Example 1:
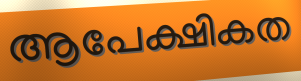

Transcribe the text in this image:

ആപേക്ഷികത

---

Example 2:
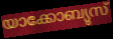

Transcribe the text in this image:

യാക്കോബ്യുസ്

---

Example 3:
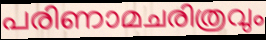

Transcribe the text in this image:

പരിണാമചരിത്രവും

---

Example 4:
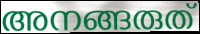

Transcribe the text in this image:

അനങ്ങരുത്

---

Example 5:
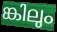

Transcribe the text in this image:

ങ്കിലും